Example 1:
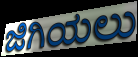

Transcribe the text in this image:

ಜಿಗಿಯಲು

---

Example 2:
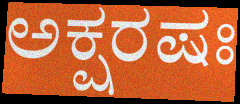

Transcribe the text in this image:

ಅಕ್ಷರಷಃ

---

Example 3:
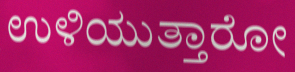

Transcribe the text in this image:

ಉಳಿಯುತ್ತಾರೋ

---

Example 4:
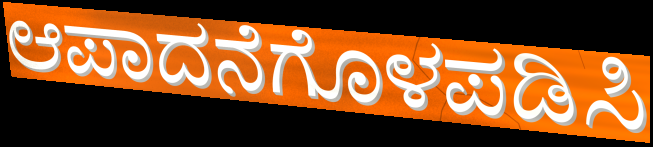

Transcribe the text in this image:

ಆಪಾದನೆಗೊಳಪಡಿಸಿ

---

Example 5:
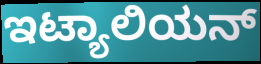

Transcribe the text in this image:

ಇಟ್ಯಾಲಿಯನ್